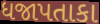
ધજાપતાકા